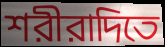
শরীরাদিতে